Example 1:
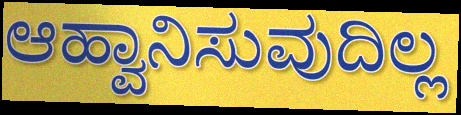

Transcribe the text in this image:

ಆಹ್ವಾನಿಸುವುದಿಲ್ಲ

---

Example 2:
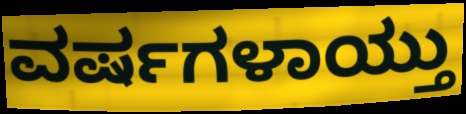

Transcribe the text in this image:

ವರ್ಷಗಳಾಯ್ತು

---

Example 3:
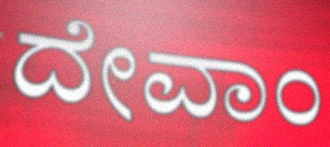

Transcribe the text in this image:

ದೇವಾಂ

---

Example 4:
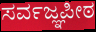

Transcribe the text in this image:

ಸರ್ವಜ್ಞಪೀಠ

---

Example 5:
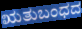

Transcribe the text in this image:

ಋತುಬಂಧದ